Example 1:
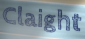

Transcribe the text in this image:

Claight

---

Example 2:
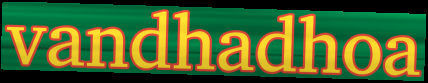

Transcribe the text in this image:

vandhadhoa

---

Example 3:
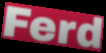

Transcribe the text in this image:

Ferd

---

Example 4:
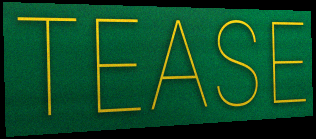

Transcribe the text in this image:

TEASE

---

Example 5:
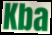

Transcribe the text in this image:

Kba